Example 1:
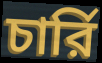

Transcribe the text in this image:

চার্রি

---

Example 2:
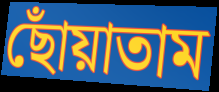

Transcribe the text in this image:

ছোঁয়াতাম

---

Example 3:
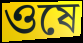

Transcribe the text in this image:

ওষে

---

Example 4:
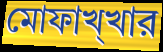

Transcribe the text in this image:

মোফাখ্খার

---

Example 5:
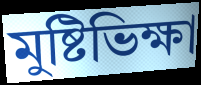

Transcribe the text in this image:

মুষ্টিভিক্ষা